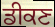
ਡੀਕਣ